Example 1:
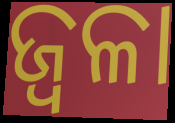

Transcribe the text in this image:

ଜ୍ଵଳା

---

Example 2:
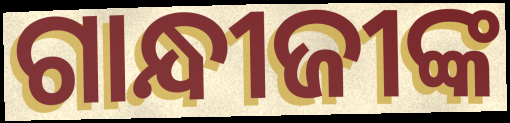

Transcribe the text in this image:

ଗାନ୍ଧୀଜୀଙ୍କ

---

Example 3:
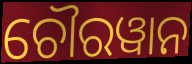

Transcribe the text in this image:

ଚୌରୱାନ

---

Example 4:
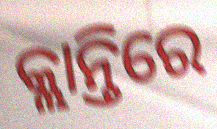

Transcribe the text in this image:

କ୍ଲାନ୍ତିରେ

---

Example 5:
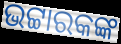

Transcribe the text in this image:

ଭଟ୍ଟାରକଙ୍କ